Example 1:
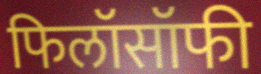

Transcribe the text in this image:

फिलॉसॉफी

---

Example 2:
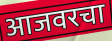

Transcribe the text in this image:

आजवरचा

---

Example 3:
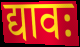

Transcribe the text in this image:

द्यावः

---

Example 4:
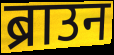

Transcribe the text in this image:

ब्राउन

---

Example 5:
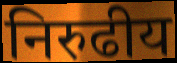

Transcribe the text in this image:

निरुढीय